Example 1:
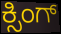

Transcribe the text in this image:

ಕ್ಸಿಂಗ್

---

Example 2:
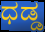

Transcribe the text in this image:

ಧಡ್ಡ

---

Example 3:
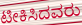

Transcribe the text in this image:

ಟೀಕಿಸಿದವರು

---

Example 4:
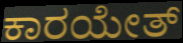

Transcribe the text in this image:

ಕಾರಯೇತ್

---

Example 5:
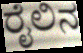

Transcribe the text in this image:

ರೈಲಿನ